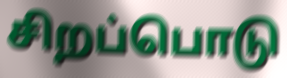
சிறப்பொடு